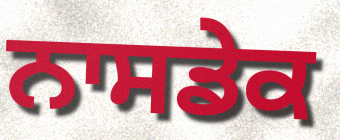
ਨਾਸਡੇਕ